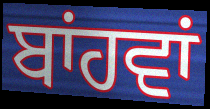
ਬਾਂਹਵਾਂ